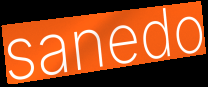
sanedo